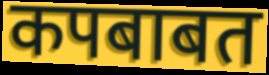
कपबाबत